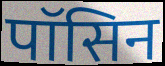
पॉसिन